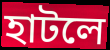
হাটলে